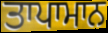
ਤਾਪਾਮਾਨ